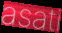
asati